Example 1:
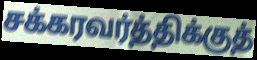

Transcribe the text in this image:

சக்கரவர்த்திக்குத்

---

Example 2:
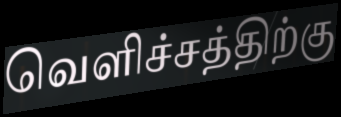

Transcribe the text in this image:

வெளிச்சத்திற்கு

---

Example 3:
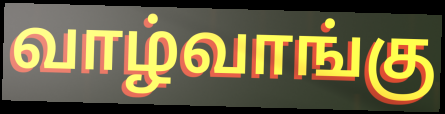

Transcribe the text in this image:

வாழ்வாங்கு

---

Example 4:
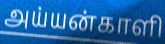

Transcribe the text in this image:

அய்யன்காளி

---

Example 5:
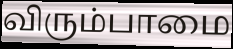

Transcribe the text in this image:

விரும்பாமை